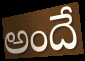
అందే